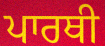
ਪਾਰਥੀ